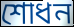
শোধন